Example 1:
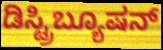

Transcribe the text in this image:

ಡಿಸ್ಟ್ರಿಬ್ಯೂಷನ್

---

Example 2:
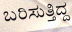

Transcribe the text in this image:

ಬರಿಸುತ್ತಿದ್ದ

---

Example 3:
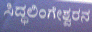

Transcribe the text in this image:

ಸಿದ್ಧಲಿಂಗೇಶ್ವರನ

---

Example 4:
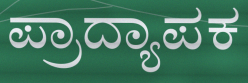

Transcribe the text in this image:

ಪ್ರಾದ್ಯಾಪಕ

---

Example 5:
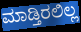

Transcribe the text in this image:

ಮಾಡ್ತಿರಲಿಲ್ಲ